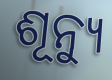
ଶୂନ୍ୟୁ